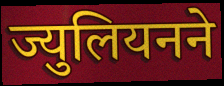
ज्युलियनने